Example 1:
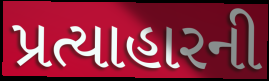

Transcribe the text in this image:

પ્રત્યાહારની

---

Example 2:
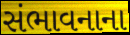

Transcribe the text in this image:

સંભાવનાના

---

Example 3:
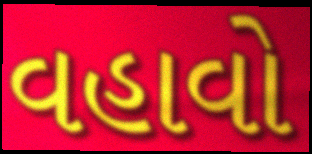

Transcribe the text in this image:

વહાવો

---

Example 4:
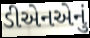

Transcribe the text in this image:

ડીએનએનું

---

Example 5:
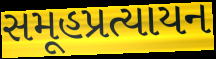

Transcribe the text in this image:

સમૂહપ્રત્યાયન